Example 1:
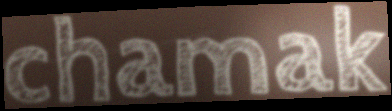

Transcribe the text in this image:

chamak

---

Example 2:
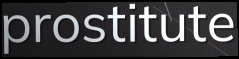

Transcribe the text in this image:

prostitute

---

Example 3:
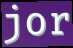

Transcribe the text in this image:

jor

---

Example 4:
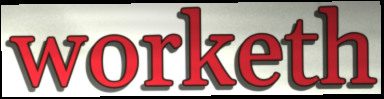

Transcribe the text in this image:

worketh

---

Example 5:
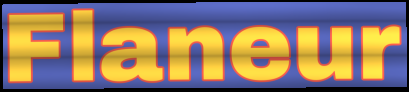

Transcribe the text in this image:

Flaneur